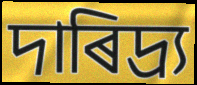
দাৰিদ্ৰ্য